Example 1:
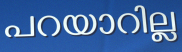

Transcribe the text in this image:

പറയാറില്ല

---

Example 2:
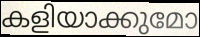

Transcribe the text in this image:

കളിയാക്കുമോ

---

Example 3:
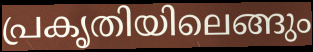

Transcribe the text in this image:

പ്രകൃതിയിലെങ്ങും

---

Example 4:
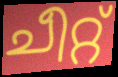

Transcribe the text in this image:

ചീറ്റ്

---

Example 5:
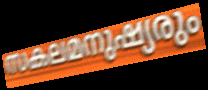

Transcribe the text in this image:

സകലമനുഷ്യരും